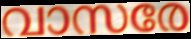
വാസരേ